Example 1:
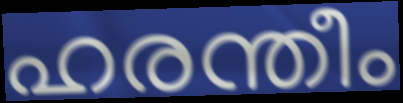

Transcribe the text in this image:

ഹരന്തീം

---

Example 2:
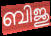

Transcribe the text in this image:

ബിജു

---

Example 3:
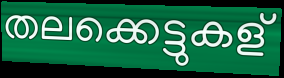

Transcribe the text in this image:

തലക്കെട്ടുകള്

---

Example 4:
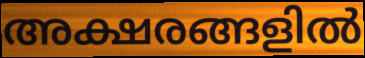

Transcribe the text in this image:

അക്ഷരങ്ങളിൽ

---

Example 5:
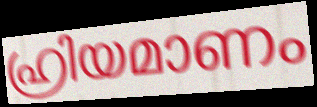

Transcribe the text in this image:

ഹ്രിയമാണം